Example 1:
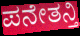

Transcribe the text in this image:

ಪನೇತನ್ತಿ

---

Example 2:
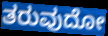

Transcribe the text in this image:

ತರುವುದೋ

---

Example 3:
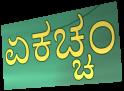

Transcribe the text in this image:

ಏಕಚ್ಚಂ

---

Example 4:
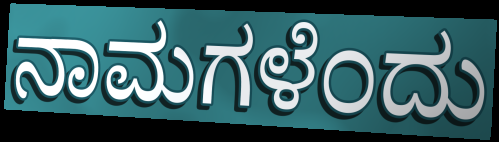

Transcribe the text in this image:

ನಾಮಗಳೆಂದು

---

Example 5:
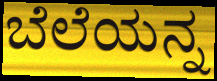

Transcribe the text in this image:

ಬೆಲೆಯನ್ನ